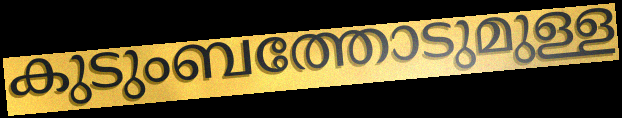
കുടുംബത്തോടുമുള്ള